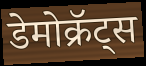
डेमोक्रॅट्स